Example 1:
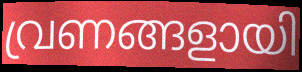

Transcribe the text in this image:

വ്രണങ്ങളായി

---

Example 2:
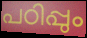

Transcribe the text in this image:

പഠിപ്പും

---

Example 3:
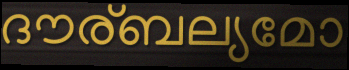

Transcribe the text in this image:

ദൗര്ബല്യമോ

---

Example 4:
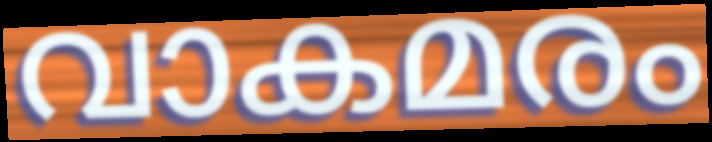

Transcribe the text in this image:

വാകമരം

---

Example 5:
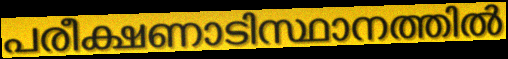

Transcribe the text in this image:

പരീക്ഷണാടിസ്ഥാനത്തിൽ